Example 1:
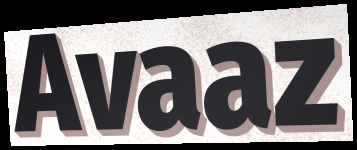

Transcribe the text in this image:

Avaaz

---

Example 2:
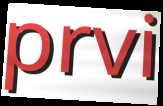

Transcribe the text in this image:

prvi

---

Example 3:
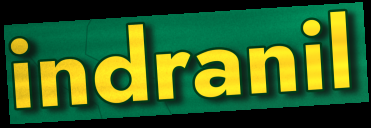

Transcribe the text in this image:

indranil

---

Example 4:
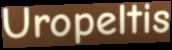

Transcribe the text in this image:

Uropeltis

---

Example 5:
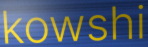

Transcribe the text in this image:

kowshi